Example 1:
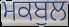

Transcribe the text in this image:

ਮਕਬੁਲ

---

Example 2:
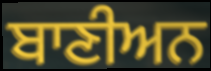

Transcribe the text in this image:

ਬਾਣੀਅਨ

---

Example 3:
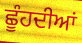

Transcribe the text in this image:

ਛੂੰਹਦੀਆਂ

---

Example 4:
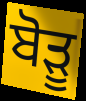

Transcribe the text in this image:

ਬੋੜੂ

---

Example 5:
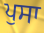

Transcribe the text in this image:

ਪੁਸਾ